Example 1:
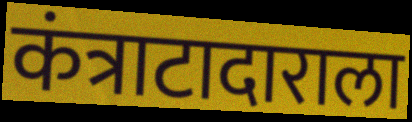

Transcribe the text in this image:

कंत्राटादाराला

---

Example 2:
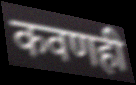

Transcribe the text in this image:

कवणही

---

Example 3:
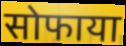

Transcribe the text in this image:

सोफाया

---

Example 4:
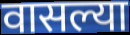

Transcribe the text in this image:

वासल्या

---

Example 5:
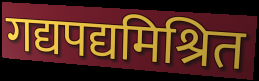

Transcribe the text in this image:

गद्यपद्यमिश्रित